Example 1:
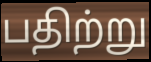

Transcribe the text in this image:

பதிற்று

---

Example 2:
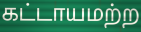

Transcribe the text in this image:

கட்டாயமற்ற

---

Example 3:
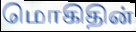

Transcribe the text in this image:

மொகிதின்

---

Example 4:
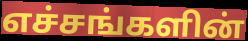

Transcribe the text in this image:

எச்சங்களின்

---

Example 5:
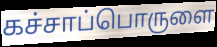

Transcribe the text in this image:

கச்சாப்பொருளை